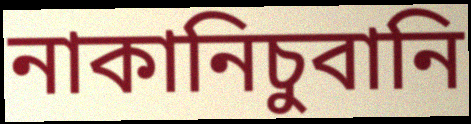
নাকানিচুবানি